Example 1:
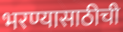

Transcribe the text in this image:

भरण्यासाठीची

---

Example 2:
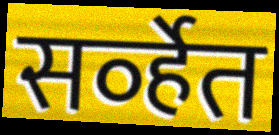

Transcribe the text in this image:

सर्व्हेत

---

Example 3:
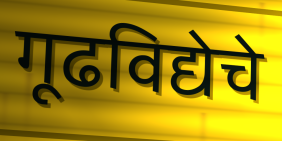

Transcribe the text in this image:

गूढविद्येचे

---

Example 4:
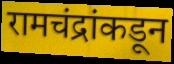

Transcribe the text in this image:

रामचंद्रांकडून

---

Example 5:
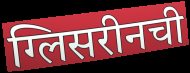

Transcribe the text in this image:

ग्लिसरीनची